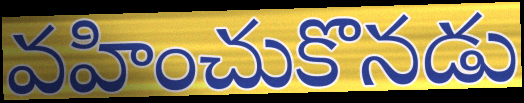
వహించుకొనడు